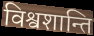
विश्वशान्ति